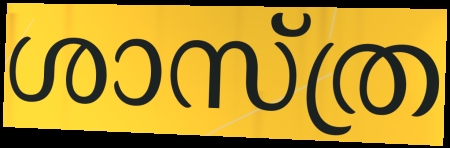
ശാസ്ത്ര